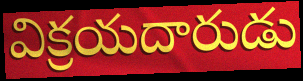
విక్రయదారుడు